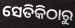
ସେତିକିଠାରୁ